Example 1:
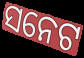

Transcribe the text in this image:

ସନେଟ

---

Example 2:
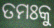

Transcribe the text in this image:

ତମଃକୁ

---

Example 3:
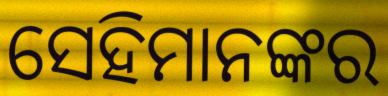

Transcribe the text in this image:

ସେହିମାନଙ୍କର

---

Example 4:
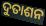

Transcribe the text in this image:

ଦୁତାଶନ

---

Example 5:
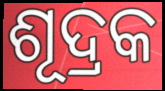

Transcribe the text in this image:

ଶୂଦ୍ରକ